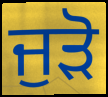
ਜੁੜੋ